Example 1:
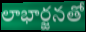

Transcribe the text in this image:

లాభార్జనతో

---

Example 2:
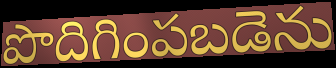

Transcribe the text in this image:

పొదిగింపబడెను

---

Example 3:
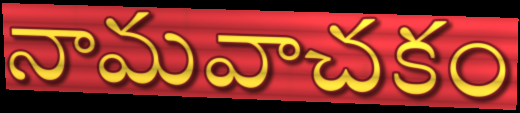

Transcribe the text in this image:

నామవాచకం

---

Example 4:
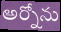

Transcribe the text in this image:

అర్నోను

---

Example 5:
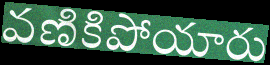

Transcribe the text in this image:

వణికిపోయారు